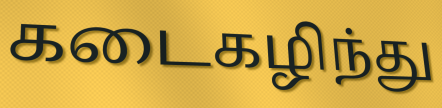
கடைகழிந்து